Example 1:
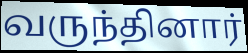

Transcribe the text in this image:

வருந்தினார்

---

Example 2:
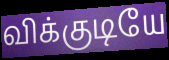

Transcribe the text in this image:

விக்குடியே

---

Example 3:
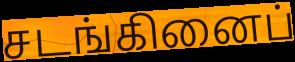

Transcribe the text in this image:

சடங்கினைப்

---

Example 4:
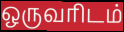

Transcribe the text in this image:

ஒருவரிடம்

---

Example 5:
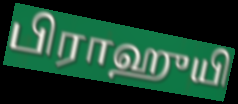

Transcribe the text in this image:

பிராஹுயி